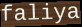
faliya